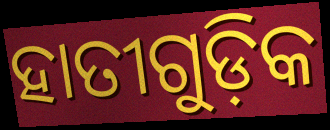
ହାତୀଗୁଡ଼ିକ